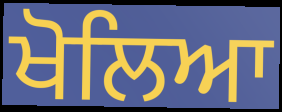
ਖੋਲਿਆ